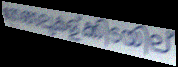
തേങ്ങലുകള്ക്കിടയില്